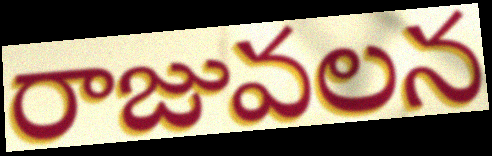
రాజువలన